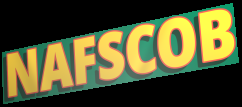
NAFSCOB